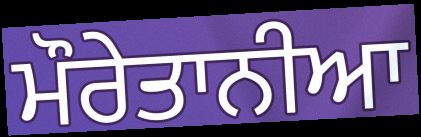
ਮੌਰੇਤਾਨੀਆ